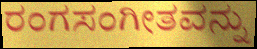
ರಂಗಸಂಗೀತವನ್ನು